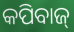
କପିବାଜ୍